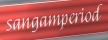
sangamperiod